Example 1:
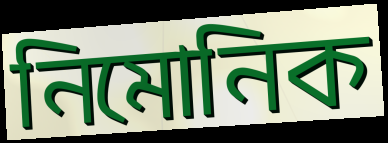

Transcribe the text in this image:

নিমোনিক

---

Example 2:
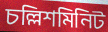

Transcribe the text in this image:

চল্লিশমিনিট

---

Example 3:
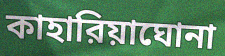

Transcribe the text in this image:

কাহারিয়াঘোনা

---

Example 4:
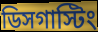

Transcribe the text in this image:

ডিসগাস্টিং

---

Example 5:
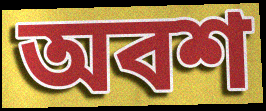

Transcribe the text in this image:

অবশ